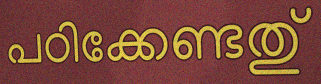
പഠിക്കേണ്ടതു്